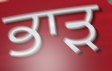
ਭਾੜ